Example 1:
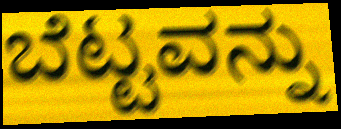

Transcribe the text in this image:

ಬೆಟ್ಟವನ್ನು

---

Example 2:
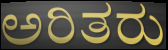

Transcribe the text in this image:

ಅರಿತರು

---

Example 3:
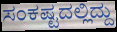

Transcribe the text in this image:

ಸಂಕಷ್ಟದಲ್ಲಿದ್ದು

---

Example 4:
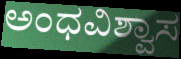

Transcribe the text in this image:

ಅಂಧವಿಶ್ವಾಸ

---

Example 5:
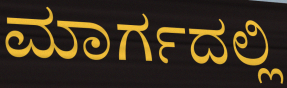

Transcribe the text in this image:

ಮಾರ್ಗದಲ್ಲಿ